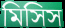
মিসিস